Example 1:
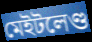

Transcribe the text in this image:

মেইটলেণ্ড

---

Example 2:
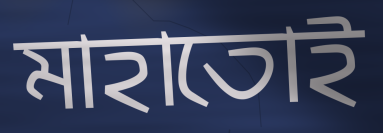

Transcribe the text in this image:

মাহাতোই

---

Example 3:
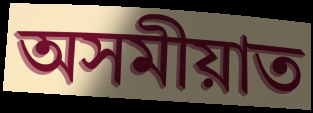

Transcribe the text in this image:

অসমীয়াত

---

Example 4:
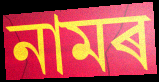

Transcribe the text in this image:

নামৰ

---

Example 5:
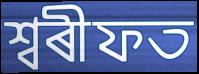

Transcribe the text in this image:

শ্বৰীফত